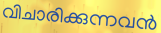
വിചാരിക്കുന്നവൻ